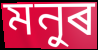
মনুৰ